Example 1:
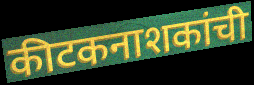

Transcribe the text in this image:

कीटकनाशकांची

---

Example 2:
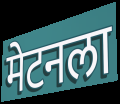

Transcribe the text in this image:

मेटनला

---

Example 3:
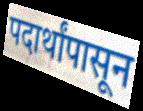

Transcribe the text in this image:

पदार्थांपासून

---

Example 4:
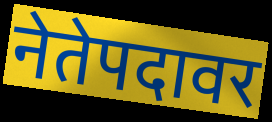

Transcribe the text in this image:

नेतेपदावर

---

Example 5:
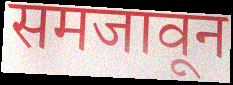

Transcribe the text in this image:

समजावून